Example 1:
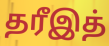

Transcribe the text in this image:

தரீஇத்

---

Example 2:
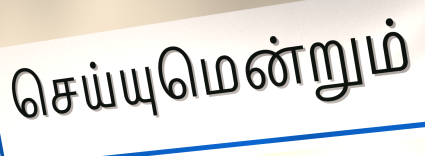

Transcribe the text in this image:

செய்யுமென்றும்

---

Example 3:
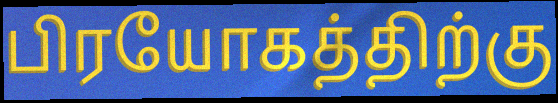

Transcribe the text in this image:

பிரயோகத்திற்கு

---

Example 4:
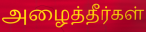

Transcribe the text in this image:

அழைத்தீர்கள்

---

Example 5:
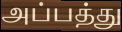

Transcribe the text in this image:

அப்பத்து